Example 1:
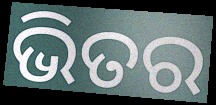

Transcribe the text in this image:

ଭିତର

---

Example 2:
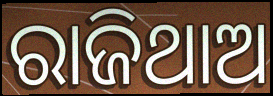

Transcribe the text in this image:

ରାଜିଥାଅ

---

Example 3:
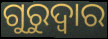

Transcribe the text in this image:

ଗୁରୁଦ୍ଵାର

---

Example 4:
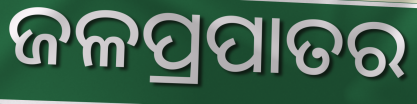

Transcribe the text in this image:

ଜଳପ୍ରପାତର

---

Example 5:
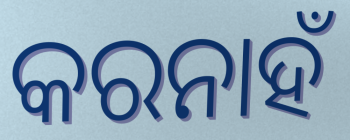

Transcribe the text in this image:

କରନାହଁ